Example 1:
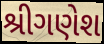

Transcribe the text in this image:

શ્રીગણેશ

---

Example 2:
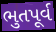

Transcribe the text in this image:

ભુતપૂર્વ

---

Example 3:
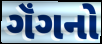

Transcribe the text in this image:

ગૅંગનો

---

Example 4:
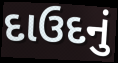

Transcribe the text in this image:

દાઉદનું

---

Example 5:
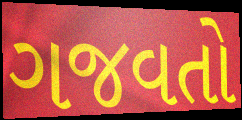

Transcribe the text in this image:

ગજવતો